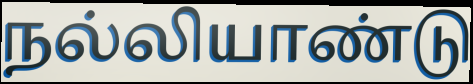
நல்லியாண்டு